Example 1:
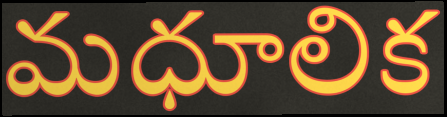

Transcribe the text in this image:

మధూలిక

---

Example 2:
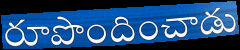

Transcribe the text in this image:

రూపొందించాడు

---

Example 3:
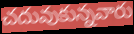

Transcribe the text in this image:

చదువుకున్నవారు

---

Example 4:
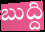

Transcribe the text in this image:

బుద్ది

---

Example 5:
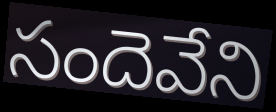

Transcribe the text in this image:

సందెవేని